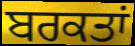
ਬਰਕਤਾਂ